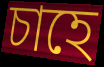
চাহে